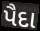
પૈદા